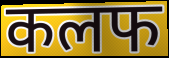
कलफ